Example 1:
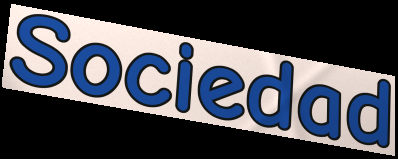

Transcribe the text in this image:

Sociedad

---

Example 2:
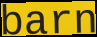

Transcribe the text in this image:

barn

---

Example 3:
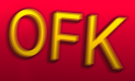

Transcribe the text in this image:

OFK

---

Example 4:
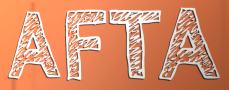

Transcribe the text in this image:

AFTA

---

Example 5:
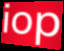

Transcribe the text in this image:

iop